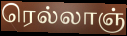
ரெல்லாஞ்